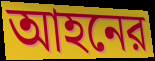
আহনের